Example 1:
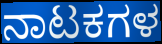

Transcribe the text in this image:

ನಾಟಕಗಳ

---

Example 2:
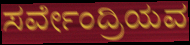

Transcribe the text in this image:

ಸರ್ವೇಂದ್ರಿಯವ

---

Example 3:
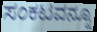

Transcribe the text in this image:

ಸಂಕಟವನ್ನೂ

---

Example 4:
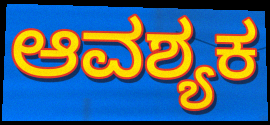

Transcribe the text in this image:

ಆವಶ್ಯಕ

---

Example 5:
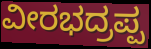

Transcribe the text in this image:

ವೀರಭದ್ರಪ್ಪ